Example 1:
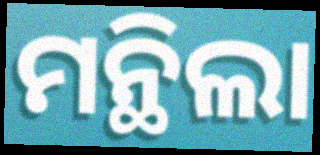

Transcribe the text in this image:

ମନ୍ଥିଲା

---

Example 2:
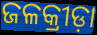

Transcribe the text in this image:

ଜଳକ୍ରୀଡ଼ା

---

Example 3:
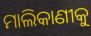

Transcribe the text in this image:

ମାଲିକାଣୀକୁ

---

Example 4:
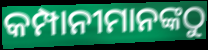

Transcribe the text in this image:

କମ୍ପାନୀମାନଙ୍କଠୁ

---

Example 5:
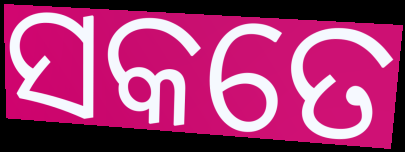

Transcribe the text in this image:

ସକତେ